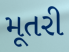
મૂતરી